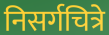
निसर्गचित्रे